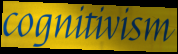
cognitivism